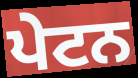
ਪੇਟਨ